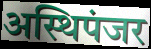
अस्थिपंजर